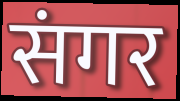
संगर